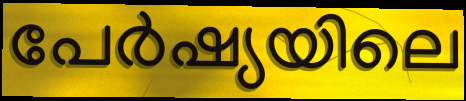
പേർഷ്യയിലെ